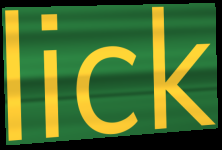
lick